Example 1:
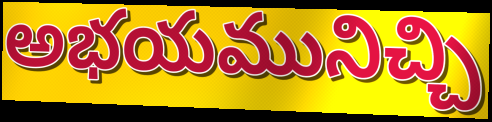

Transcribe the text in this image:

అభయమునిచ్చి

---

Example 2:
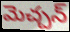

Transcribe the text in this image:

మెచ్చన్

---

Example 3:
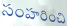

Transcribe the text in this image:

సంహరించి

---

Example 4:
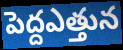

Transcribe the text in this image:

పెద్దఎత్తున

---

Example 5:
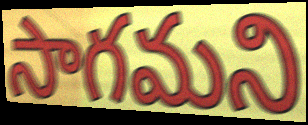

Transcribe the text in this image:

సాగమని